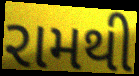
રામથી